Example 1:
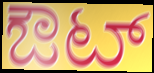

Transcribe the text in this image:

ಔಟ್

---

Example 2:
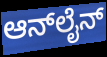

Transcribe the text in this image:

ಆನ್‍ಲೈನ್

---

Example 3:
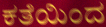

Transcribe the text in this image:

ಕತೆಯಿಂದ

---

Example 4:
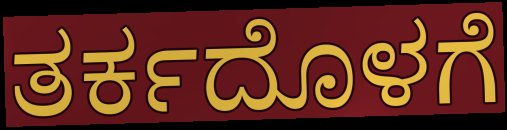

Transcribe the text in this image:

ತರ್ಕದೊಳಗೆ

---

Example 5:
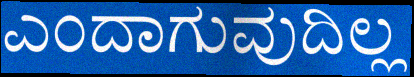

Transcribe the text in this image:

ಎಂದಾಗುವುದಿಲ್ಲ